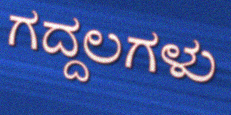
ಗದ್ದಲಗಳು